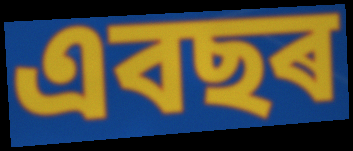
এবছৰ